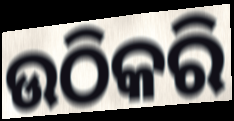
ଉଠିକରି